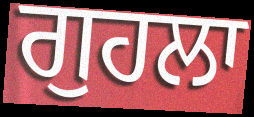
ਗੁਹਲਾ